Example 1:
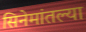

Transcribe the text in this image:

सिनेमांतल्या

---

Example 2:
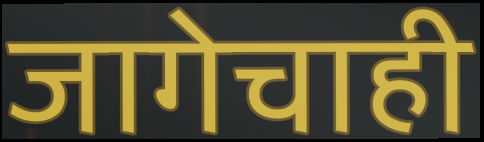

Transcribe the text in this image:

जागेचाही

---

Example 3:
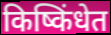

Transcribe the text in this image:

किष्किंधेत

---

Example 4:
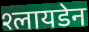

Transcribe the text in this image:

श्लायडेन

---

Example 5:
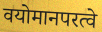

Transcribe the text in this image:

वयोमानपरत्वे